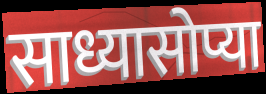
साध्यासोप्या